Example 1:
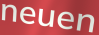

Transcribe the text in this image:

neuen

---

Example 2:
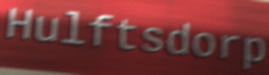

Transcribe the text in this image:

Hulftsdorp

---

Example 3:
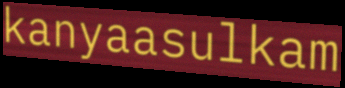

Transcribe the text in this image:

kanyaasulkam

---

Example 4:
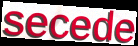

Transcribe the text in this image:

secede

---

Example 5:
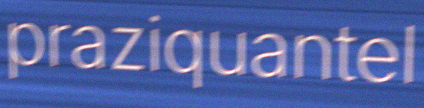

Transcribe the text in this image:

praziquantel